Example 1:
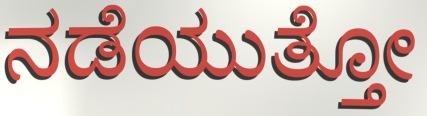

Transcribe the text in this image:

ನಡೆಯುತ್ತೋ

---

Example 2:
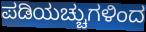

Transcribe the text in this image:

ಪಡಿಯಚ್ಚುಗಳಿಂದ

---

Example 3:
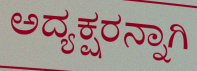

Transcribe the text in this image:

ಅದ್ಯಕ್ಷರನ್ನಾಗಿ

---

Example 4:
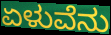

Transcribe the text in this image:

ಏಳುವೆನು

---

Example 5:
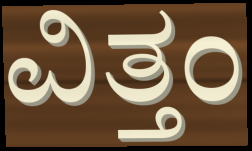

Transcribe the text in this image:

ವಿತ್ತಂ